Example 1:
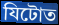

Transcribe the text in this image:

যিটোত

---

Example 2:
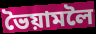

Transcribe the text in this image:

ভৈয়ামলৈ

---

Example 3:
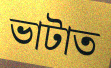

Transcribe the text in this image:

ভাটাত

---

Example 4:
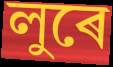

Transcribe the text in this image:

লুৰে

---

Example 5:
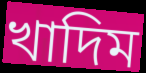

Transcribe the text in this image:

খাদিম